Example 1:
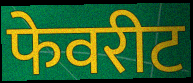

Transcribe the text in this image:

फेवरीट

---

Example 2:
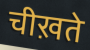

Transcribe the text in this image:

चीख़ते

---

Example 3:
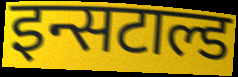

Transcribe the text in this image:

इन्सटाल्ड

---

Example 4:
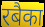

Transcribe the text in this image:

रबैका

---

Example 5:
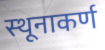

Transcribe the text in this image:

स्थूनाकर्ण